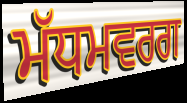
ਮੱਧਮਵਰਗ